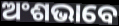
ଅଂଶଭାବେ